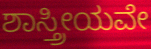
ಶಾಸ್ತ್ರೀಯವೇ